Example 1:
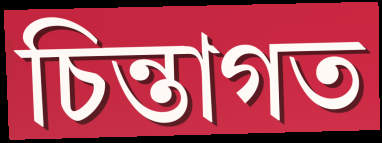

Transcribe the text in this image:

চিন্তাগত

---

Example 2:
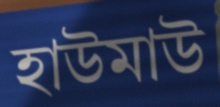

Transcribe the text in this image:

হাউমাউ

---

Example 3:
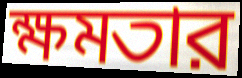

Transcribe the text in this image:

ক্ষমতার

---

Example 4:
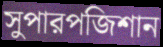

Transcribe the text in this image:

সুপারপজিশান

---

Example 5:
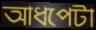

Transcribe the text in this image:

আধপেটা